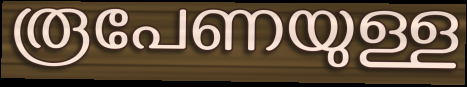
രൂപേണയുള്ള